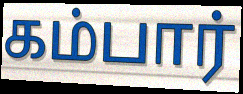
கம்பார்